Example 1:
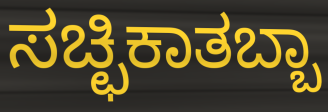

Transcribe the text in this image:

ಸಚ್ಛಿಕಾತಬ್ಬಾ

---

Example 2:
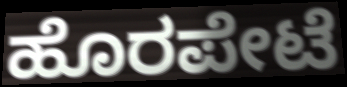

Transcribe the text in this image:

ಹೊರಪೇಟೆ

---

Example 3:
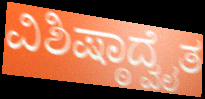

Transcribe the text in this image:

ವಿಶಿಷ್ಠಾದ್ವೈತ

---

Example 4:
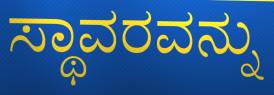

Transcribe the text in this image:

ಸ್ಥಾವರವನ್ನು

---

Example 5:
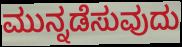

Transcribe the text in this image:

ಮುನ್ನಡೆಸುವುದು